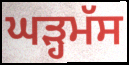
ਘੜ੍ਹਮੱਸ